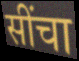
सींचा